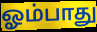
ஓம்பாது